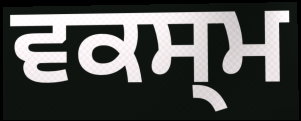
ਵਕਸ੍ਮ